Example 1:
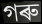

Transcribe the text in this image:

গৰু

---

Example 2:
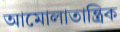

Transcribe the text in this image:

আমোলাতান্ত্ৰিক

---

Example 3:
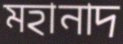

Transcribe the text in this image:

মহানাদ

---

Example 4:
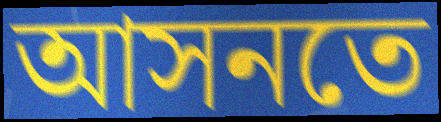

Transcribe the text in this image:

আসনতে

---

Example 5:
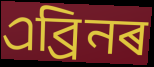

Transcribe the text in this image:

এব্ৰিনৰ